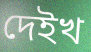
দেইখ